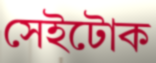
সেইটোক